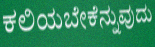
ಕಲಿಯಬೇಕೆನ್ನುವುದು